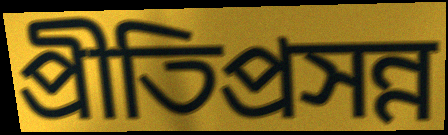
প্রীতিপ্রসন্ন